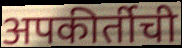
अपकीर्तीची